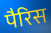
पैरिस